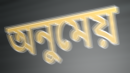
অনুমেয়